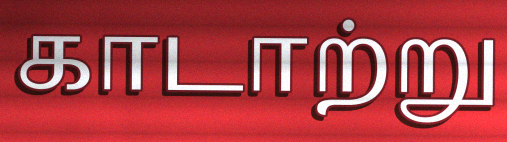
காடாற்று